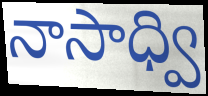
నాసాధ్వి